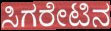
ಸಿಗರೇಟಿನ